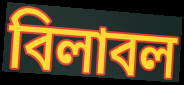
বিলাবল